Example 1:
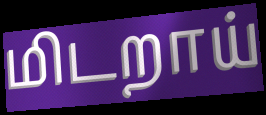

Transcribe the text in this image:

மிடறாய்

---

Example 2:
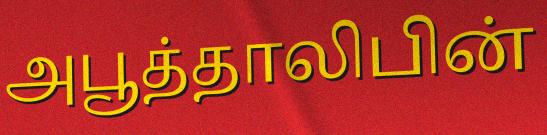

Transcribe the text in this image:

அபூத்தாலிபின்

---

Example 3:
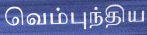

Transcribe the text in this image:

வெம்புந்திய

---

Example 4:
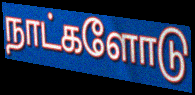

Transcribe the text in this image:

நாட்களோடு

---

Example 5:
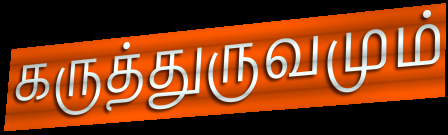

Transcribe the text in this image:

கருத்துருவமும்